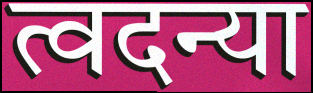
त्वदन्या